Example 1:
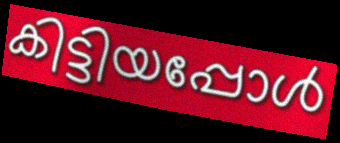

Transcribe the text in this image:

കിട്ടിയപ്പോൾ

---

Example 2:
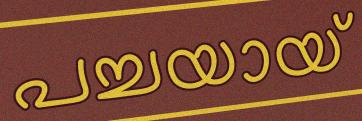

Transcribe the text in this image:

പച്ചയായ്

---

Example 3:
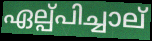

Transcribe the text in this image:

ഏല്പ്പിച്ചാല്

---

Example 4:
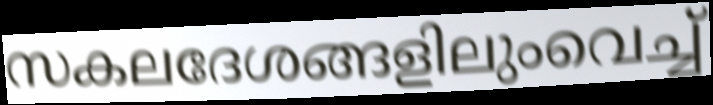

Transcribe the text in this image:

സകലദേശങ്ങളിലുംവെച്ച്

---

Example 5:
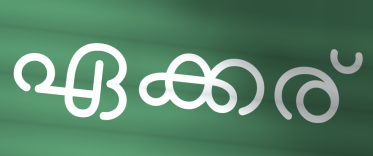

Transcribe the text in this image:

ഏക്കര്